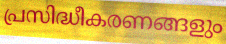
പ്രസിദ്ധീകരണങ്ങളും